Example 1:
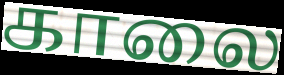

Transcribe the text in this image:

காலை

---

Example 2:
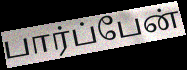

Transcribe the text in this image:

பார்ப்பேன்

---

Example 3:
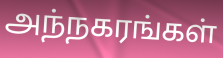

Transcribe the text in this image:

அந்நகரங்கள்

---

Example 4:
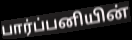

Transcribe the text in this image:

பார்ப்பனியின்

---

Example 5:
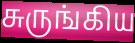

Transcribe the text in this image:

சுருங்கிய